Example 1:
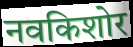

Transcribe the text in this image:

नवकिशोर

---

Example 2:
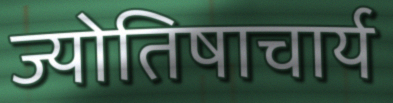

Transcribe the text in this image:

ज्योतिषाचार्य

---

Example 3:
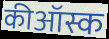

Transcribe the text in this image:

कीऑस्क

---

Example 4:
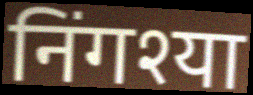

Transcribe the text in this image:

निंगश्या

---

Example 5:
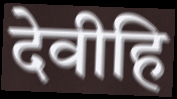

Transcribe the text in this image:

देवीहि